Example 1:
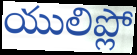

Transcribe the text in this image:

యులిప్లో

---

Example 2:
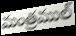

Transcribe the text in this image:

మంత్రముల్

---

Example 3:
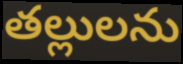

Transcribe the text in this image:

తల్లులను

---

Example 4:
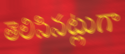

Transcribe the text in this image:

తెలిసినట్లుగా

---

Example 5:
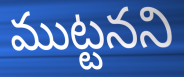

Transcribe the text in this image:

ముట్టనని